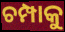
ଚମ୍ପାକୁ